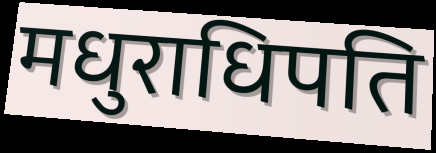
मधुराधिपति